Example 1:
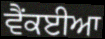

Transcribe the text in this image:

ਵੈਂਕਈਆ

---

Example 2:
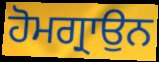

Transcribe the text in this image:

ਹੋਮਗ੍ਰਾਉਨ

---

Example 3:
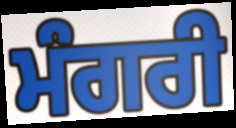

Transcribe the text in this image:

ਮੰਗਰੀ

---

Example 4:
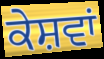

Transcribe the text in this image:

ਕੇਸ਼ਵਾਂ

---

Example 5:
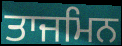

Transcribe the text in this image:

ਤਾਜਮਿਨ